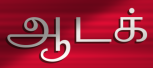
ஆடக்